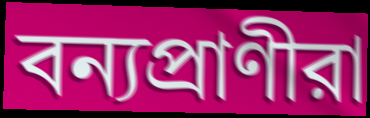
বন্যপ্রাণীরা